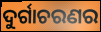
ଦୁର୍ଗାଚରଣର